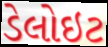
ડેલોઇટ